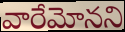
వారేమోనని